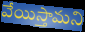
వేయిస్తామని